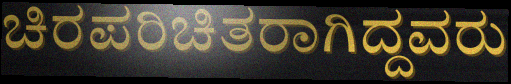
ಚಿರಪರಿಚಿತರಾಗಿದ್ದವರು